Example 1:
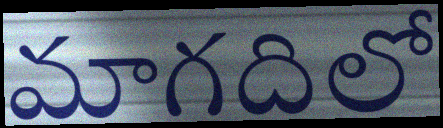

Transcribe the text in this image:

మాగదిలో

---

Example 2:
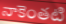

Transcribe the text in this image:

నాకెంతటి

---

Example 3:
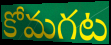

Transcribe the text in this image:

కోమగట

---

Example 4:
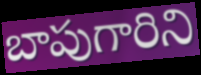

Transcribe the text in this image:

బాపుగారిని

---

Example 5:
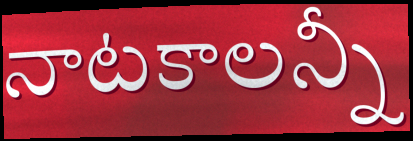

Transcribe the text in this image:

నాటకాలన్నీ